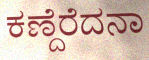
ಕಣ್ದೆರೆದನಾ